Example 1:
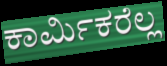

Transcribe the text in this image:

ಕಾರ್ಮಿಕರೆಲ್ಲ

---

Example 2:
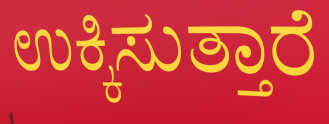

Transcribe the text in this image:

ಉಕ್ಕಿಸುತ್ತಾರೆ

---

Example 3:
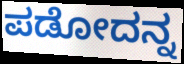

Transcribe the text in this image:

ಪಡೋದನ್ನ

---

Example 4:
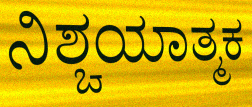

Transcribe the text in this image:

ನಿಶ್ಚಯಾತ್ಮಕ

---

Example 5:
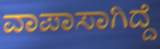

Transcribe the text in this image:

ವಾಪಾಸಾಗಿದ್ದೆ